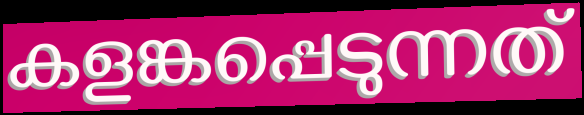
കളങ്കപ്പെടുന്നത്